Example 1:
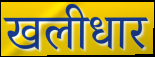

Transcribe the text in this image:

खलीधार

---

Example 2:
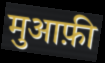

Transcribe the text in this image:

मुआफ़ी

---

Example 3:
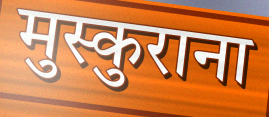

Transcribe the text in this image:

मुस्कुराना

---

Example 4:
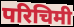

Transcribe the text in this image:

परिचिमी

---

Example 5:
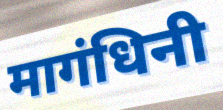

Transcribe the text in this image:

मागंधिनी